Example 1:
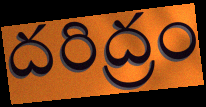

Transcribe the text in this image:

దరిద్రం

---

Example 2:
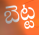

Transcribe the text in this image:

బెట్ట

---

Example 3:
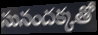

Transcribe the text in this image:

సునందక్కతో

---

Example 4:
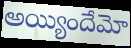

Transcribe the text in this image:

అయ్యిందేమో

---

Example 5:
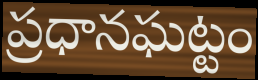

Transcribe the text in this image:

ప్రధానఘట్టం